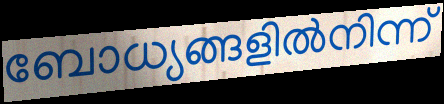
ബോധ്യങ്ങളിൽനിന്ന്